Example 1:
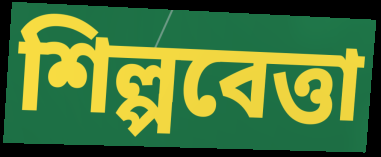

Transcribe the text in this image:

শিল্পবেত্তা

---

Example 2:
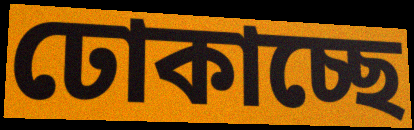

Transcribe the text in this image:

ঢোকাচ্ছে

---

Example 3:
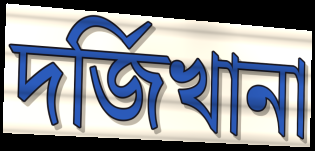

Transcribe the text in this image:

দর্জিখানা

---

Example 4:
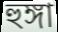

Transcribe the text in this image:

হুঙ্গা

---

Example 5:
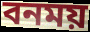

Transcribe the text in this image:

বনময়